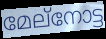
മേല്നോട്ട